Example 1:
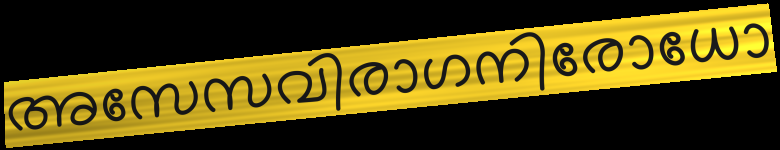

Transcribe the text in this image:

അസേസവിരാഗനിരോധോ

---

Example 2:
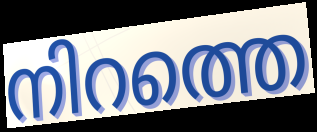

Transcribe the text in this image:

നിറത്തെ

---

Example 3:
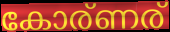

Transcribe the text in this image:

കോര്ണര്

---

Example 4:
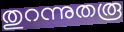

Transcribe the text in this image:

തുറന്നുതരൂ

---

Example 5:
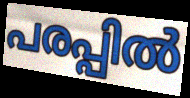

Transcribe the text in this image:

പരപ്പിൽ